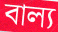
বাল্য